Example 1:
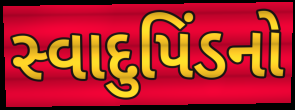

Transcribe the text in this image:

સ્વાદુપિંડનો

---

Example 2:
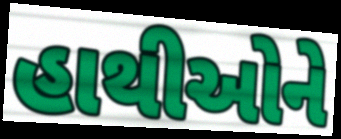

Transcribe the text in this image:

હાથીઓને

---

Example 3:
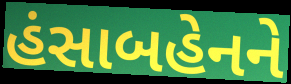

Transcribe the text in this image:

હંસાબહેનને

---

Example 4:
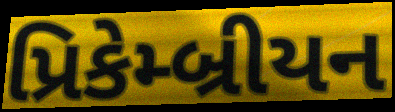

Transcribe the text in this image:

પ્રિકેમ્બ્રીયન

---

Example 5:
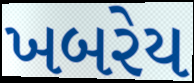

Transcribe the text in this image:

ખબરેય